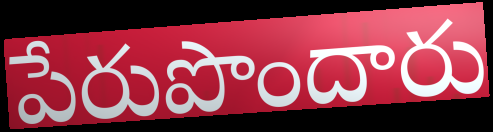
పేరుపొందారు